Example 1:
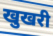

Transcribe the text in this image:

खुखरी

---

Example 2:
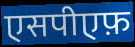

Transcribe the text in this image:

एसपीएफ़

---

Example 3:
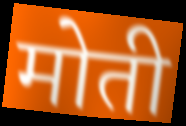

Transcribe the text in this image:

मोती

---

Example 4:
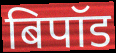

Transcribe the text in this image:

बिपॉड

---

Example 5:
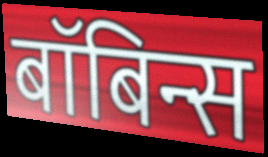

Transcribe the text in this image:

बॉबिन्स